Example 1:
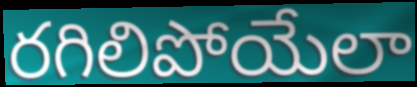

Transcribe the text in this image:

రగిలిపోయేలా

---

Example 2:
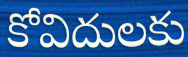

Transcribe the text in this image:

కోవిదులకు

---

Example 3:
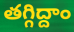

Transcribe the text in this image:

తగ్గిద్దాం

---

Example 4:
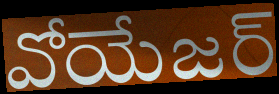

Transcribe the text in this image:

వోయేజర్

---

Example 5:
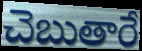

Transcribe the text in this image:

చెబుతారే